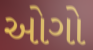
ઓગો